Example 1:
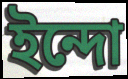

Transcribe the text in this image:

ইন্দো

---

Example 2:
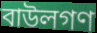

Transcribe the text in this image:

বাউলগণ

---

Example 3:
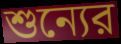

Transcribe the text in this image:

শুন্যের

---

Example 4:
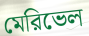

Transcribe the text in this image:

মেরিভেল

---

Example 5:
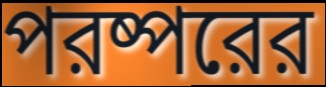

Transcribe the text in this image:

পরষ্পরের